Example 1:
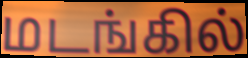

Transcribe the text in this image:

மடங்கில்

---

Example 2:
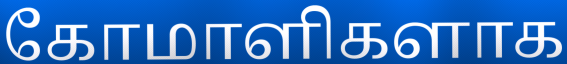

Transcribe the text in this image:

கோமாளிகளாக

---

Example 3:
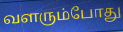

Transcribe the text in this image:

வளரும்போது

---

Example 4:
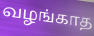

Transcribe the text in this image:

வழங்காத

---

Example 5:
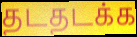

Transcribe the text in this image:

தடதடக்க